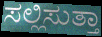
ಸಲ್ಲಿಸುತ್ತಾ